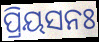
ପ୍ରିୟସନଃ